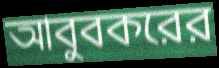
আবুবকরের